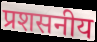
प्रशसनीय